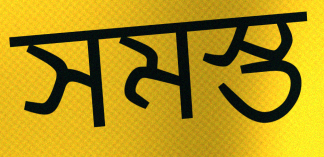
সমস্ত